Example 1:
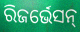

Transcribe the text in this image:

ରିଜର୍ଭେସନ୍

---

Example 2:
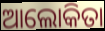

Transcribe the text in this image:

ଆଲୋକିତା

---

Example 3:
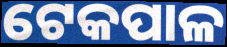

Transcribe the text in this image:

ଟେକପାଳ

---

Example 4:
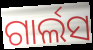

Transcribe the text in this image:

ଗାର୍ଲସ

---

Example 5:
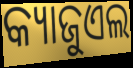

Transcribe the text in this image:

କ୍ୟାଜୁଏଲ